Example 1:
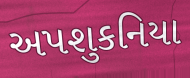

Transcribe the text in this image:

અપશુકનિયા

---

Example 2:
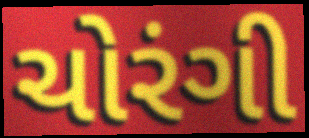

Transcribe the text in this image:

ચોરંગી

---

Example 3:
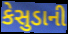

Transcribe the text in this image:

કેસુડાની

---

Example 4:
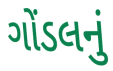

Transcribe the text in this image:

ગોંડલનું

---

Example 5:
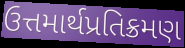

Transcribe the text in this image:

ઉત્તમાર્થપ્રતિક્રમણ